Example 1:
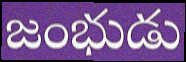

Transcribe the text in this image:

జంభుడు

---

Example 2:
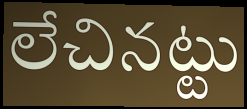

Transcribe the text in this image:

లేచినట్టు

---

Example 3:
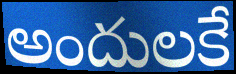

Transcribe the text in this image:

అందులకే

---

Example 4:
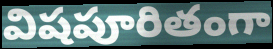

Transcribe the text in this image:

విషపూరితంగా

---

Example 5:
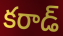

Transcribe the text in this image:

కరాడ్